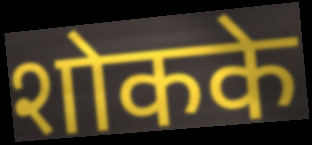
शोकके